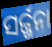
ସର୍ଜ୍ଜନା